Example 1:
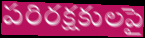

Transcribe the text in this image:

పరిరక్షకులపై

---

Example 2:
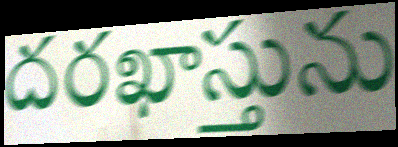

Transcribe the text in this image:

దరఖాస్తును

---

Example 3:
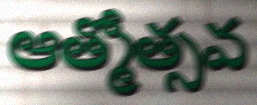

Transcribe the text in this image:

ఆత్మోత్సవ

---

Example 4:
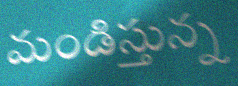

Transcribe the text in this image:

మండిస్తున్న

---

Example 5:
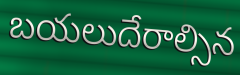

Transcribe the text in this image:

బయలుదేరాల్సిన